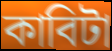
কাবিটা